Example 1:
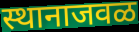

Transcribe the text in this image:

स्थानाजवळ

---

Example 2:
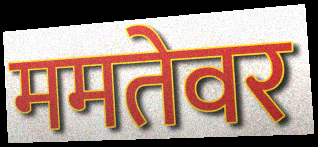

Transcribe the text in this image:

ममतेवर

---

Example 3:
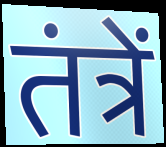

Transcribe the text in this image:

तंत्रें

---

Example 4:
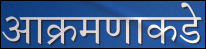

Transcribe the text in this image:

आक्रमणाकडे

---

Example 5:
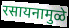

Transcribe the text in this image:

रसायनामुळे